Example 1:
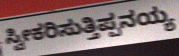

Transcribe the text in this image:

ಸ್ವೀಕರಿಸುತ್ತಿಪ್ಪನಯ್ಯ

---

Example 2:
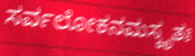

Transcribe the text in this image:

ಸರ್ವಲೋಕನಮಸ್ಕೃತಃ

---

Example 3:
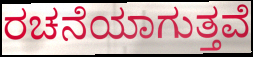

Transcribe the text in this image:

ರಚನೆಯಾಗುತ್ತವೆ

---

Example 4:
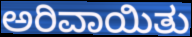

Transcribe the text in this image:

ಅರಿವಾಯಿತು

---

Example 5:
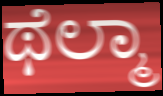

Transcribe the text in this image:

ಥೆಲ್ಮಾ